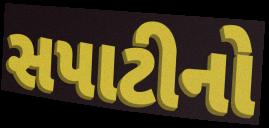
સપાટીનો